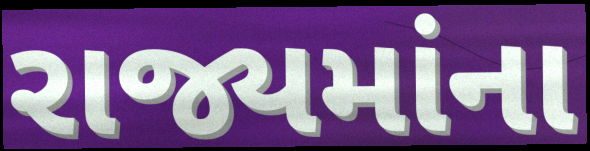
રાજ્યમાંના